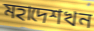
মহাদেশখন